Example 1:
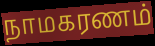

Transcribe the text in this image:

நாமகரணம்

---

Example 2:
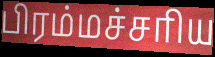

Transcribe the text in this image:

பிரம்மச்சரிய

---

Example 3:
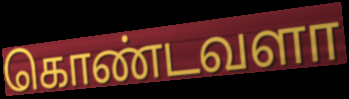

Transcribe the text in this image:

கொண்டவளா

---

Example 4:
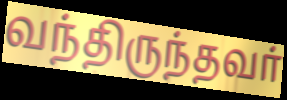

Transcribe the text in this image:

வந்திருந்தவர்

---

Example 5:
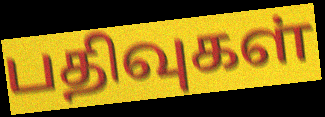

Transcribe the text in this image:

பதிவுகள்